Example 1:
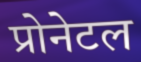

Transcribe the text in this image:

प्रोनेटल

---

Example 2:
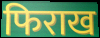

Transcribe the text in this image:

फिराख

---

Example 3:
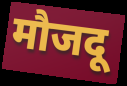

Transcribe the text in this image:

मौजदू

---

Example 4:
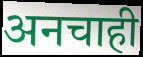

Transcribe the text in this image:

अनचाही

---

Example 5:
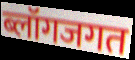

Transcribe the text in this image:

ब्लॉगजगत